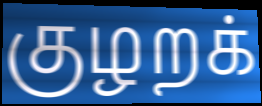
குழறக்